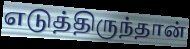
எடுத்திருந்தான்